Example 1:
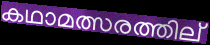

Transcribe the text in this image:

കഥാമത്സരത്തില്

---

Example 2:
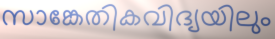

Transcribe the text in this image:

സാങ്കേതികവിദ്യയിലും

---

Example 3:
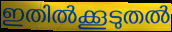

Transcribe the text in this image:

ഇതിൽക്കൂടുതൽ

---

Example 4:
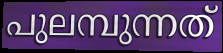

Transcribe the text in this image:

പുലമ്പുന്നത്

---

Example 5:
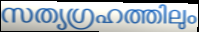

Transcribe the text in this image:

സത്യഗ്രഹത്തിലും